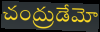
చంద్రుడేమో